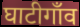
घाटीगाँव